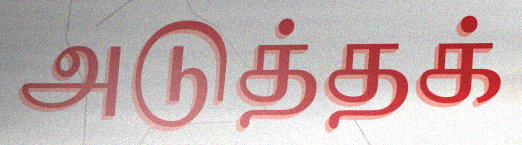
அடுத்தக்